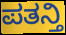
ಪತನ್ತಿ